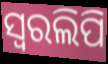
ସ୍ଵରଲିପି